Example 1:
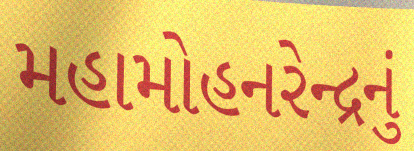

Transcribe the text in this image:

મહામોહનરેન્દ્રનું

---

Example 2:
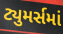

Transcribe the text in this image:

ટ્યુમર્સમાં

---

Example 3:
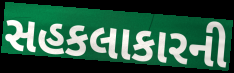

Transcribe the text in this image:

સહકલાકારની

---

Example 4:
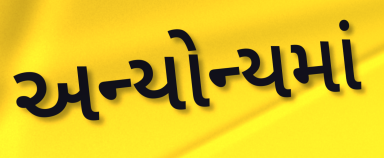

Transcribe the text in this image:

અન્યોન્યમાં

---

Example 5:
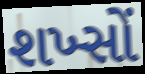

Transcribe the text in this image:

શખ્સોં